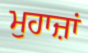
ਮੁਹਾਜ਼ਾਂ